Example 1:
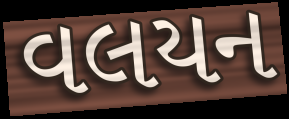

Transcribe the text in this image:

વલયન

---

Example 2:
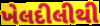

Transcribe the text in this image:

ખેલદીલીથી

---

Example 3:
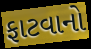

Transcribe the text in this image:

ફાટવાનો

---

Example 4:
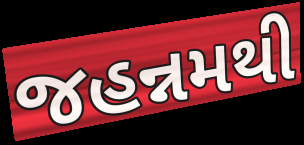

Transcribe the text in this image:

જહન્નમથી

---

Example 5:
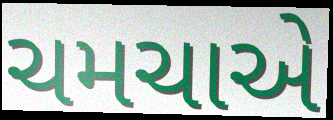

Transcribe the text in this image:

ચમચાએ